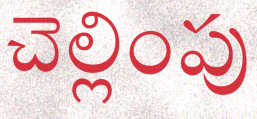
చెల్లింపు